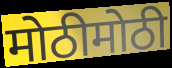
मोठीमोठी